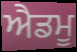
ਐਡਮੂ